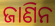
ଜାଣିନ